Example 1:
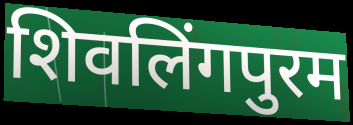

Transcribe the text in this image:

शिवलिंगपुरम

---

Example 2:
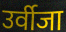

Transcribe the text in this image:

उर्वीजा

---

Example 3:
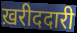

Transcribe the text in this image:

ख़रीददारी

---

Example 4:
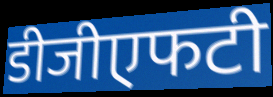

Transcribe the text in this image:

डीजीएफटी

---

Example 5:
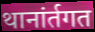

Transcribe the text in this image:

थानांर्तगत